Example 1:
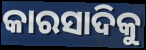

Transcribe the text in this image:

କାରସାଦିକୁ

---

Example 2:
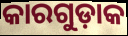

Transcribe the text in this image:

କାରଗୁଡ଼ାକ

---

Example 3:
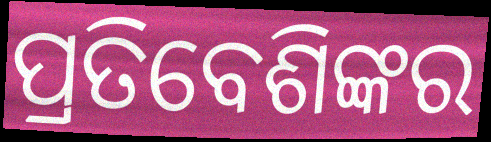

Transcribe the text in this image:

ପ୍ରତିବେଶିଙ୍କର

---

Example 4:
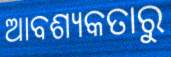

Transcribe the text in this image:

ଆବଶ୍ୟକତାରୁ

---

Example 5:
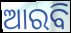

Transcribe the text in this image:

ଆରବି